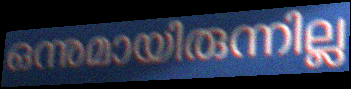
ഒന്നുമായിരുന്നില്ല